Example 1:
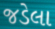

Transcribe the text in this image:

જડેલા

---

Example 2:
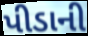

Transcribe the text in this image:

પીડાની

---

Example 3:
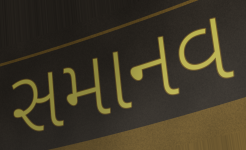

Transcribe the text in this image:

સમાનવ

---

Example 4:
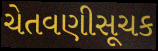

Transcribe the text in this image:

ચેતવણીસૂચક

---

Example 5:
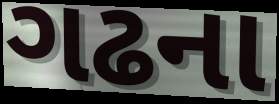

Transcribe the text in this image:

ગઢના